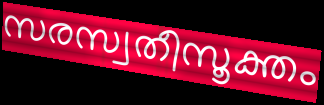
സരസ്വതീസൂക്തം